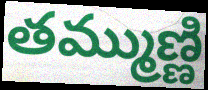
తమ్ముణ్ణి